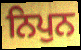
ਨਿਪੁਨ